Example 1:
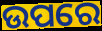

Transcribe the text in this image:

ଉପରେ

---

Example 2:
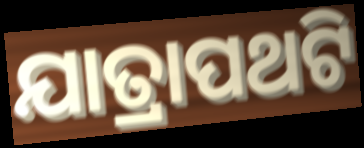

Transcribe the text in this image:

ଯାତ୍ରାପଥଟି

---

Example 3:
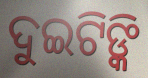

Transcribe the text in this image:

ଦୁଇଟିଙ୍କି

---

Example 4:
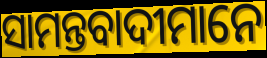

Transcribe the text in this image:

ସାମନ୍ତବାଦୀମାନେ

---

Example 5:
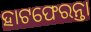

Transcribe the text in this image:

ହାଟଫେରନ୍ତା